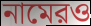
নামেরও